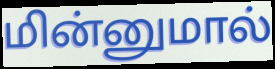
மின்னுமால்